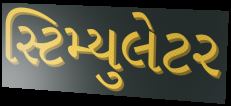
સ્ટિમ્યુલેટર